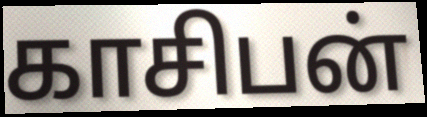
காசிபன்